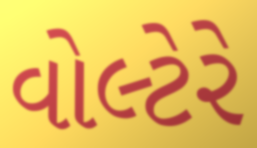
વોલ્ટેરે